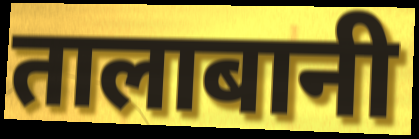
तालाबानी